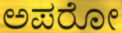
ಅಪರೋ